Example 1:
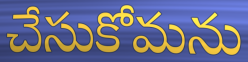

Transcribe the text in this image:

చేసుకోమను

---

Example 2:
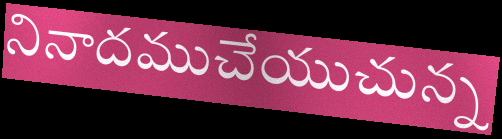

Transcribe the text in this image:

నినాదముచేయుచున్న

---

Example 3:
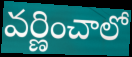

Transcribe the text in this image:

వర్ణించాలో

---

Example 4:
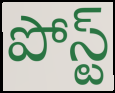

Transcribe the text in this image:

పోస్ట్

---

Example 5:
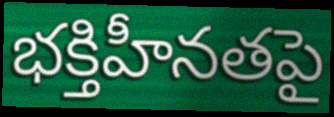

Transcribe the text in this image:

భక్తిహీనతపై